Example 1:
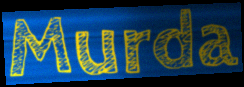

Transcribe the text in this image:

Murda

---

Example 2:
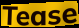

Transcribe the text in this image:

Tease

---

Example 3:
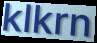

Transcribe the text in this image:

klkrn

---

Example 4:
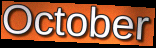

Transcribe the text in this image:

October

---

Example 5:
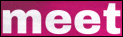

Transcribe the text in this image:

meet